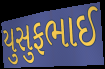
યુસુફભાઈ